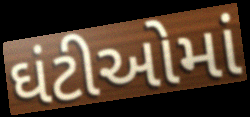
ઘંટીઓમાં